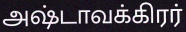
அஷ்டாவக்கிரர்